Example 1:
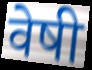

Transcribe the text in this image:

वेषी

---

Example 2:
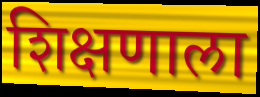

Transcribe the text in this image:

शिक्षणाला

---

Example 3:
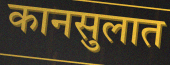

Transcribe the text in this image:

कानसुलात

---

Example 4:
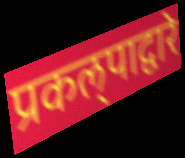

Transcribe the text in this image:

प्रकल्पाद्वारे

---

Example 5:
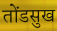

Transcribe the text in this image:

तोंडसुख